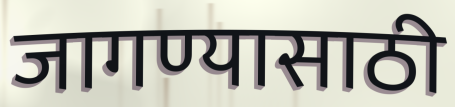
जागण्यासाठी